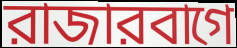
রাজারবাগে